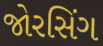
જોરસિંગ